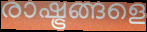
രാഷ്ട്രങ്ങളെ